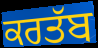
ਕਰਤੱਬ